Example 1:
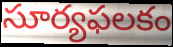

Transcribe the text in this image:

సూర్యఫలకం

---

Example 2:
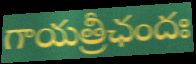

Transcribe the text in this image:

గాయత్రీఛందః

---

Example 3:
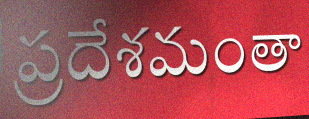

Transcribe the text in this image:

ప్రదేశమంతా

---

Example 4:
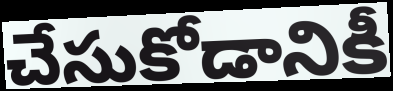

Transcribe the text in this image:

చేసుకోడానికీ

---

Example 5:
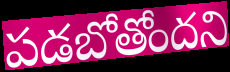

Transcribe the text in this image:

పడబోతోందని